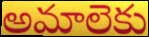
అమాలెకు